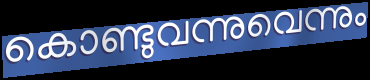
കൊണ്ടുവന്നുവെന്നും